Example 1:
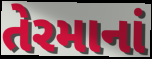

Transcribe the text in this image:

તેરમાનાં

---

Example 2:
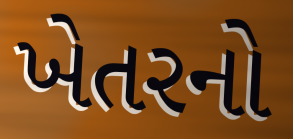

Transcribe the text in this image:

ખેતરનો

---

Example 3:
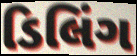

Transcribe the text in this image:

ડિલિંગ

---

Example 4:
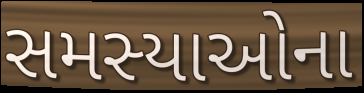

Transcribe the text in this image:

સમસ્યાઓના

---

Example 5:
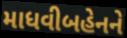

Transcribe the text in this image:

માધવીબહેનને